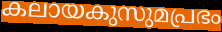
കലായകുസുമപ്രഭം